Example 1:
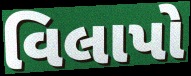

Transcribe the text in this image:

વિલાપો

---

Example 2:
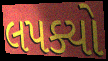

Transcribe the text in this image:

લપક્યો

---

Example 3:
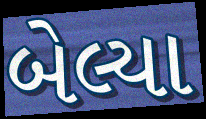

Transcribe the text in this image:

બેલ્યા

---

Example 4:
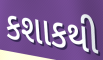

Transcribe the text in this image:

કશાકથી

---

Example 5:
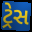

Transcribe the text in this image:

ટ્રેસ